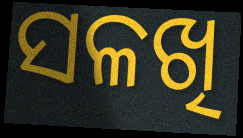
ସଳଖି